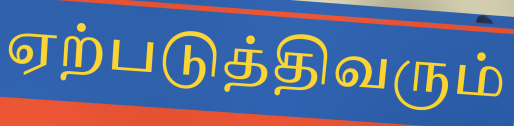
ஏற்படுத்திவரும்